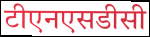
टीएनएसडीसी